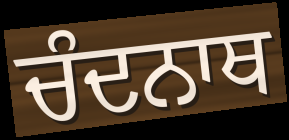
ਚੰਦਨਾਥ